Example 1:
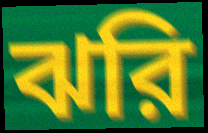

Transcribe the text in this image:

ঝরি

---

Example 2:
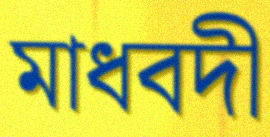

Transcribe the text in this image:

মাধবদী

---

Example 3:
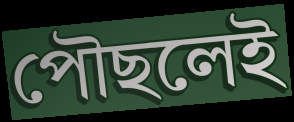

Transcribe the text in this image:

পৌছলেই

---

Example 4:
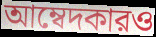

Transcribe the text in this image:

আম্বেদকারও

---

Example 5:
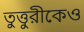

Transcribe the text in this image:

তুত্তুরীকেও